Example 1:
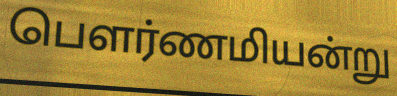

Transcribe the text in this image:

பெளர்ணமியன்று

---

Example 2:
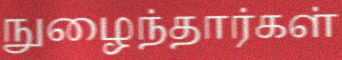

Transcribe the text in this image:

நுழைந்தார்கள்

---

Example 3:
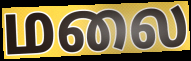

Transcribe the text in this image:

மலை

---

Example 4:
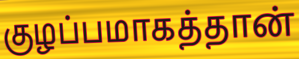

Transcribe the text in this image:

குழப்பமாகத்தான்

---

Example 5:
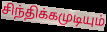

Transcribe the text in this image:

சிந்திக்கமுடியும்